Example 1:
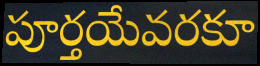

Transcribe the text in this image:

పూర్తయేవరకూ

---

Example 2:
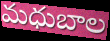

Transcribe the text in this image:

మధుబాల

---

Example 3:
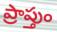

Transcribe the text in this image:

ప్రాప్తుం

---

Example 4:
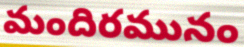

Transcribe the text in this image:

మందిరమునం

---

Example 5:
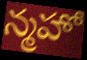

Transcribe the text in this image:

న్మహో